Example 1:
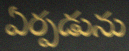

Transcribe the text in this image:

ఏర్పడును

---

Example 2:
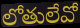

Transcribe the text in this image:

లోతులేవో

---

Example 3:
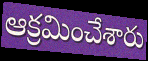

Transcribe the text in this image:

ఆక్రమించేశారు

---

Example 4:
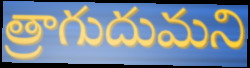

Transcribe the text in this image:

త్రాగుదుమని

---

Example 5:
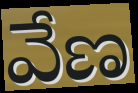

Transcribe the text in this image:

వేణ